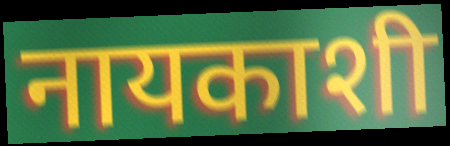
नायकाशी